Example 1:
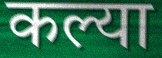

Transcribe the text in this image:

कल्या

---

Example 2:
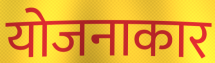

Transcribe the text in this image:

योजनाकार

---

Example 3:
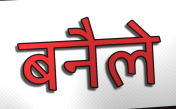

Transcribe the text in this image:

बनैले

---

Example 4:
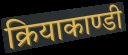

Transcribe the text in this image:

क्रियाकाण्डी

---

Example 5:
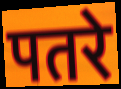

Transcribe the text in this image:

पतरे